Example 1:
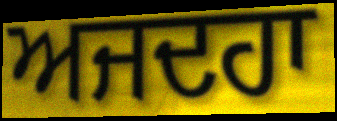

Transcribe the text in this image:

ਅਜਦਹਾ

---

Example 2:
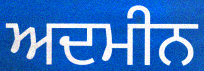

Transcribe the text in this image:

ਅਦਮੀਨ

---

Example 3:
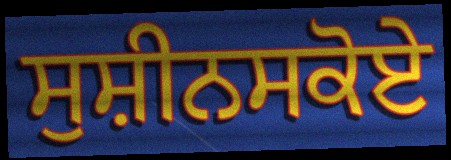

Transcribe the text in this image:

ਸੁਸ਼ੀਨਸਕੋਏ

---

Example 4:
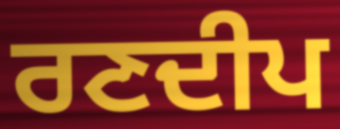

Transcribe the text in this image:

ਰਣਦੀਪ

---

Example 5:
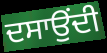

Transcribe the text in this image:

ਦਸਾਉਂਦੀ